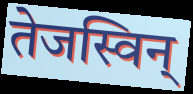
तेजस्विन्